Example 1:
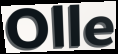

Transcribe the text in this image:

Olle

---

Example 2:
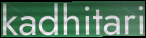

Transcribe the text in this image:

kadhitari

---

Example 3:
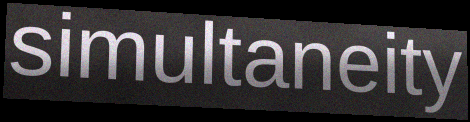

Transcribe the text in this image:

simultaneity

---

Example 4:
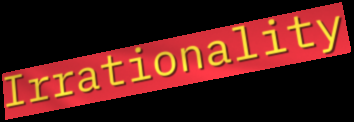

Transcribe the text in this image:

Irrationality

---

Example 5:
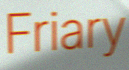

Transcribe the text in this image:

Friary